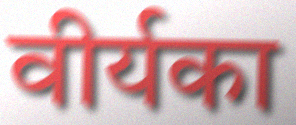
वीर्यका